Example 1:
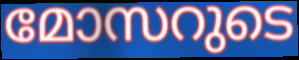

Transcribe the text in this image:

മോസറുടെ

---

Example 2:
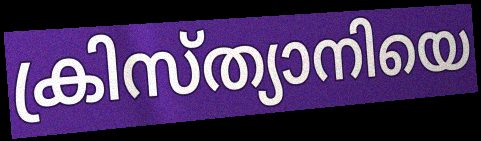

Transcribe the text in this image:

ക്രിസ്ത്യാനിയെ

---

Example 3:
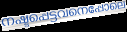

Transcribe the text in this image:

നഷ്ടപ്പെട്ടവനെപ്പോലെ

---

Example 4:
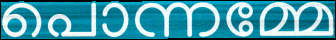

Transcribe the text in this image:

പൊന്നമ്മേ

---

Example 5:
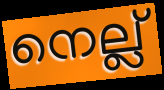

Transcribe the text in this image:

നെല്ല്